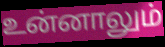
உன்னாலும்